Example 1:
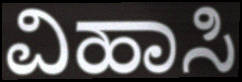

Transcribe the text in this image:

ವಿಹಾಸಿ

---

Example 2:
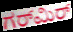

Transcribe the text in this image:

ಗರ್‌ಮಿರ್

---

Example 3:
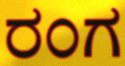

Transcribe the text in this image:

ರಂಗ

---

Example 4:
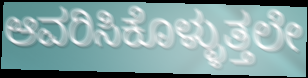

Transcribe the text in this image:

ಆವರಿಸಿಕೊಳ್ಳುತ್ತಲೇ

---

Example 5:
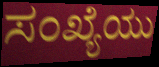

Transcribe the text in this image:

ಸಂಖ್ಯೆಯು